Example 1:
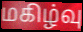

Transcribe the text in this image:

மகிழ்வு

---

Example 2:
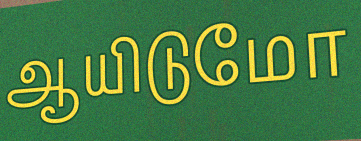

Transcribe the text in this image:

ஆயிடுமோ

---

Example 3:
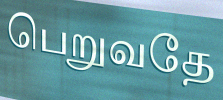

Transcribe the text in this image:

பெறுவதே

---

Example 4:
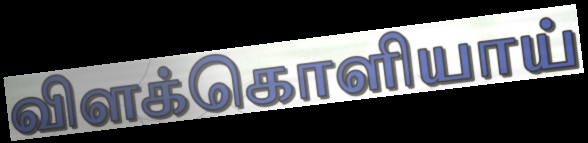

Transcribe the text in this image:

விளக்கொளியாய்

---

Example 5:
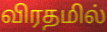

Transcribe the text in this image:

விரதமில்